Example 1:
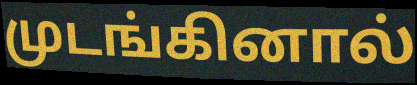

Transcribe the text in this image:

முடங்கினால்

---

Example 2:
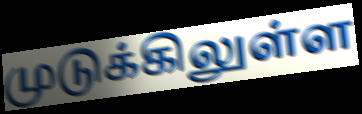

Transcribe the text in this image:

முடுக்கிலுள்ள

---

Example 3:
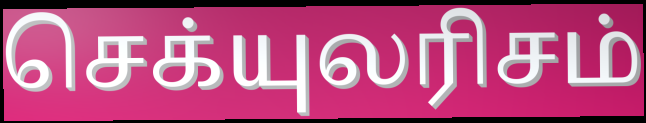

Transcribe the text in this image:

செக்யுலரிசம்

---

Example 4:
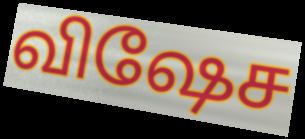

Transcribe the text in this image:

விஷேச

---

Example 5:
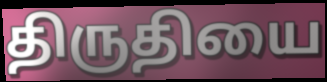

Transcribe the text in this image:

திருதியை